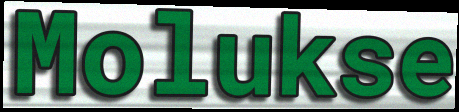
Molukse